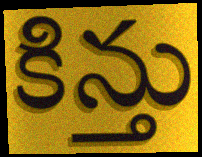
కిన్తు